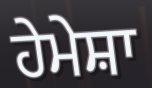
ਹੇਮੇਸ਼ਾ